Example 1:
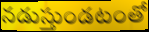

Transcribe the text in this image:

నడుస్తుండటంతో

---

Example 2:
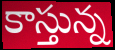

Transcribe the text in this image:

కాస్తున్న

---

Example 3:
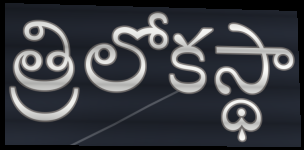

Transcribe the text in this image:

త్రిలోకస్థా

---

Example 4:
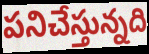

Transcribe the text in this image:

పనిచేస్తున్నది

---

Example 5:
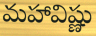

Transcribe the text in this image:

మహావిష్ణు